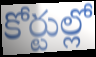
కోర్టుల్లో